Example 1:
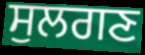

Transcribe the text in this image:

ਸੁਲਗਣ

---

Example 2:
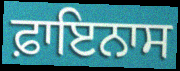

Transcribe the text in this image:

ਫ਼ਾਇਨਾਸ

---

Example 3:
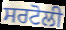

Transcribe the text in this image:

ਸਰਟੋਲੀ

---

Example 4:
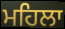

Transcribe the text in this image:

ਮਹਿਲਾ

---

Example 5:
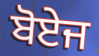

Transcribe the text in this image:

ਬੋਏਜ